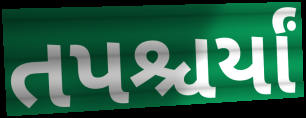
તપશ્ચર્યાં